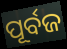
ପୂର୍ବଜ